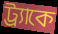
ট্র্যাকে